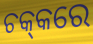
ଚକ୍‌କରେ